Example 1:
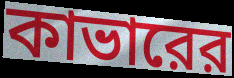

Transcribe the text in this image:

কাভারের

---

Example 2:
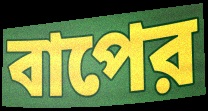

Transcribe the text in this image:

বাপের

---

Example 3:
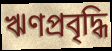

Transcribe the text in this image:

ঋণপ্রবৃদ্ধি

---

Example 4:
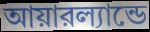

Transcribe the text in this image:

আয়ারল্যান্ডে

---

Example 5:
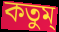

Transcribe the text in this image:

কতুম্